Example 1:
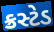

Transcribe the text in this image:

ક્રસ્ટેડ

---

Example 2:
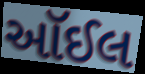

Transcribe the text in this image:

આૅઈલ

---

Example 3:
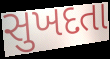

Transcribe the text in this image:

સુખદતા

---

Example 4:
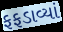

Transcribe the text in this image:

ફફડાવ્યાં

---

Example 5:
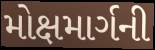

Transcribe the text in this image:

મોક્ષમાર્ગની